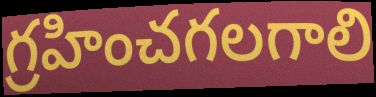
గ్రహించగలగాలి